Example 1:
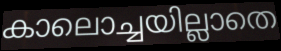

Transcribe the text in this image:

കാലൊച്ചയില്ലാതെ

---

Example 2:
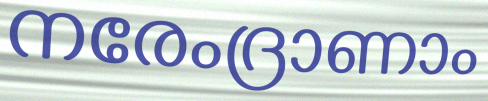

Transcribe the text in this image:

നരേംദ്രാണാം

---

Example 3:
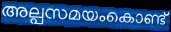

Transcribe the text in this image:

അല്പസമയംകൊണ്ട്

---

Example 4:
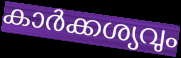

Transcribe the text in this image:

കാർക്കശ്യവും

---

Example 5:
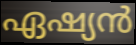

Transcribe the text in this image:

ഏഷ്യൻ